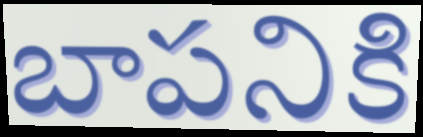
బాపనికి